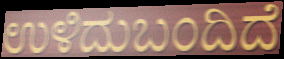
ಉಳಿದುಬಂದಿದೆ